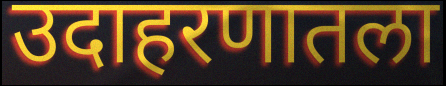
उदाहरणातला